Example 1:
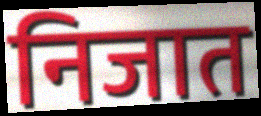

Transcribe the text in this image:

निजात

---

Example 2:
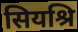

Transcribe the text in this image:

सियश्रि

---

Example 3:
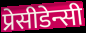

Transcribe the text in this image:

प्रेसीडेन्सी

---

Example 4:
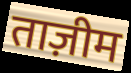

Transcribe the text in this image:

ताज़ीम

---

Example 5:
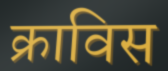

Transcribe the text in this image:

क्राविस